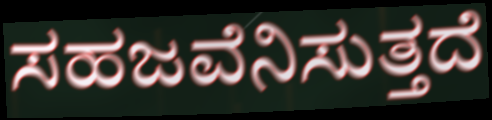
ಸಹಜವೆನಿಸುತ್ತದೆ